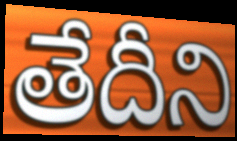
తేదీని